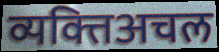
व्यक्तिअचल